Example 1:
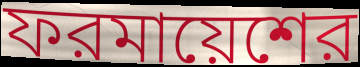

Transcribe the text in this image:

ফরমায়েশের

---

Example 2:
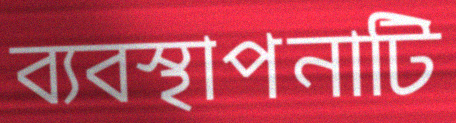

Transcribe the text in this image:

ব্যবস্থাপনাটি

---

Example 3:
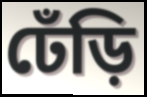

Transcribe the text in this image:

ঢেঁড়ি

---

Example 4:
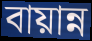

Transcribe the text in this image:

বায়ান্ন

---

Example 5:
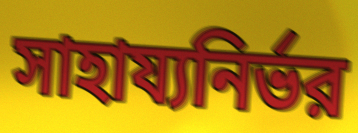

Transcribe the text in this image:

সাহায্যনির্ভর